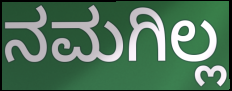
ನಮಗಿಲ್ಲ